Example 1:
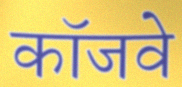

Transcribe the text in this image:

कॉजवे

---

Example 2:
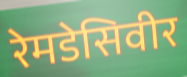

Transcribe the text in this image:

रेमडेसिवीर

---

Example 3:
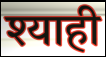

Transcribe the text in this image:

श्याही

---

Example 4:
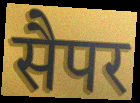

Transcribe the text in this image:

सैपर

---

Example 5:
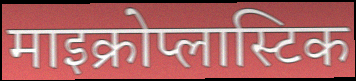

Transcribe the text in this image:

माइक्रोप्लास्टिक